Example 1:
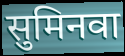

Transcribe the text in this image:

सुमिनवा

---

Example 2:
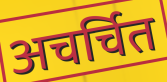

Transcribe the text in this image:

अचर्चित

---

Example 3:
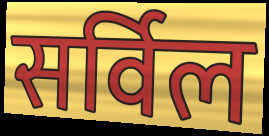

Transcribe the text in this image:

सर्विल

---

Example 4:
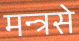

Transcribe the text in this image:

मन्त्रसे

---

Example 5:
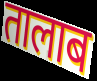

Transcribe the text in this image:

तालाब